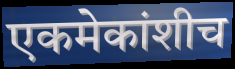
एकमेकांशीच